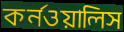
কর্নওয়ালিস